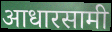
आधारसामी